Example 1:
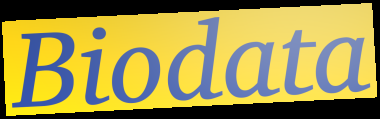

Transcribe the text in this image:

Biodata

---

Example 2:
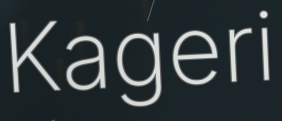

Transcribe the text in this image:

Kageri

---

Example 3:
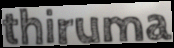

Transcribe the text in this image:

thiruma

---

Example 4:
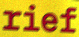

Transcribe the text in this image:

rief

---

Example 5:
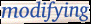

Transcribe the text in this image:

modifying